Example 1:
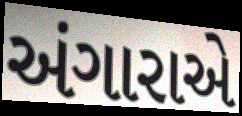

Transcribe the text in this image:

અંગારાએ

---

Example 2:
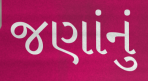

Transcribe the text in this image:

જણાંનું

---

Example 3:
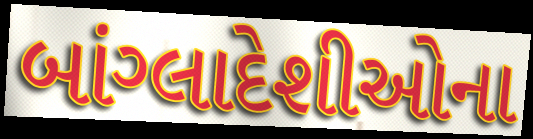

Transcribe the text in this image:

બાંગ્લાદેશીઓના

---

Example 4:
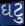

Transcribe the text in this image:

ઘટુ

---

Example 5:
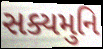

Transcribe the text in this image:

સક્યમુનિ